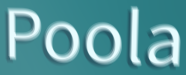
Poola